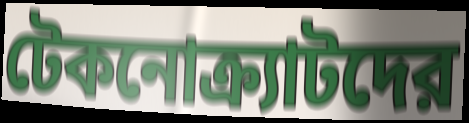
টেকনোক্র্যাটদের